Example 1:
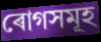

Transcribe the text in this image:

ৰোগসমূহ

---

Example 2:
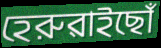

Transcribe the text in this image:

হেৰুৱাইছোঁ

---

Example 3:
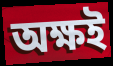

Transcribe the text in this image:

অক্ষই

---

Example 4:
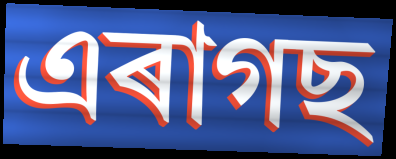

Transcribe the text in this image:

এৰাগছ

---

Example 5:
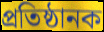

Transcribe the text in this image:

প্ৰতিষ্ঠানক